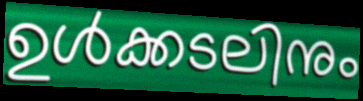
ഉൾക്കടലിനും